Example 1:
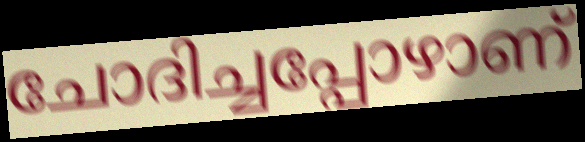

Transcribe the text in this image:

ചോദിച്ചപ്പോഴാണ്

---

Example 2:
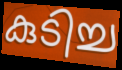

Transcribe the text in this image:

കുടിച്ച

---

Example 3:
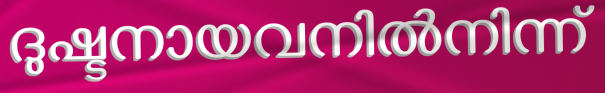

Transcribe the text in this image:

ദുഷ്ടനായവനിൽനിന്ന്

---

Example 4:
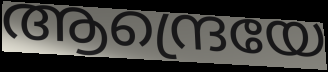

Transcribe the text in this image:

ആന്ദ്രെയേ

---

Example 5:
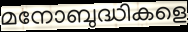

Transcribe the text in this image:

മനോബുദ്ധികളെ